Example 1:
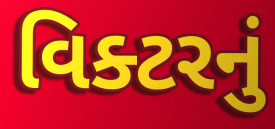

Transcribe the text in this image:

વિક્ટરનું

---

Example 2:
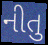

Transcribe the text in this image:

નીતુ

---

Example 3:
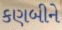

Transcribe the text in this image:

કણબીને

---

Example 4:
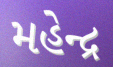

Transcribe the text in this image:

મહેન્દ્ર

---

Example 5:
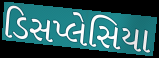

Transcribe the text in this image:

ડિસપ્લેસિયા